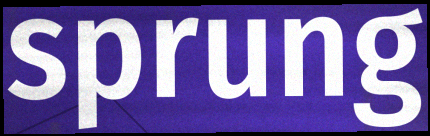
sprung